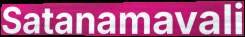
Satanamavali